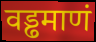
वड्ढमाणं